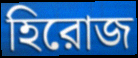
হিরোজ